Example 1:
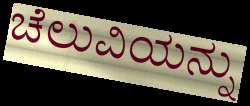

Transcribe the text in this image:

ಚೆಲುವಿಯನ್ನು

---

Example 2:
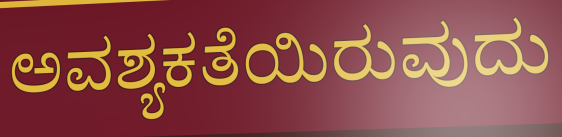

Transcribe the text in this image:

ಅವಶ್ಯಕತೆಯಿರುವುದು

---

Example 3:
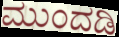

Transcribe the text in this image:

ಮುಂದಡಿ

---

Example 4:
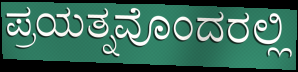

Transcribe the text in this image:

ಪ್ರಯತ್ನವೊಂದರಲ್ಲಿ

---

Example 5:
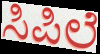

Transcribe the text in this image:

ಸಿಪಿಲೆ